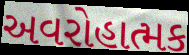
અવરોહાત્મક